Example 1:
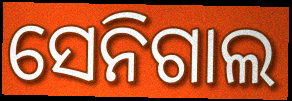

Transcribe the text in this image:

ସେନିଗାଲ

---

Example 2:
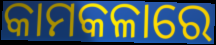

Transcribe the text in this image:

କାମକଳାରେ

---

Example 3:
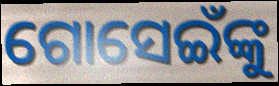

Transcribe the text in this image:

ଗୋସେଇଁଙ୍କୁ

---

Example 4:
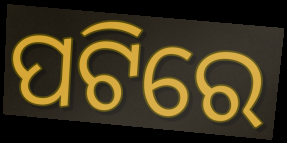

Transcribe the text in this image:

ପଟିରେ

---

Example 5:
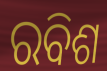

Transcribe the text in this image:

ରବିଶ